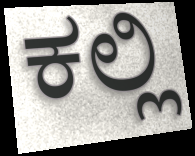
ಕಲ್ಲಿ